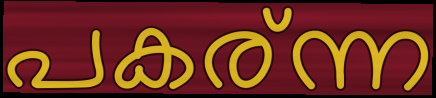
പകര്ന്ന